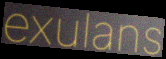
exulans